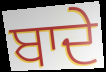
ਬਾਦੇ